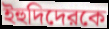
ইহুদিদেরকে